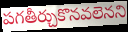
పగతీర్చుకొనవలెనని